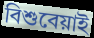
বিশুবেয়াই